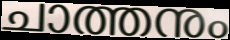
ചാത്തനും